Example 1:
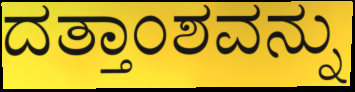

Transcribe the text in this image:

ದತ್ತಾಂಶವನ್ನು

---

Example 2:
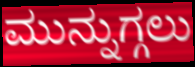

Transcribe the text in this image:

ಮುನ್ನುಗ್ಗಲು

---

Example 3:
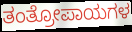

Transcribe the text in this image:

ತಂತ್ರೋಪಾಯಗಳ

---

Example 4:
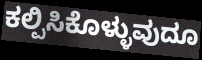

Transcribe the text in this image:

ಕಲ್ಪಿಸಿಕೊಳ್ಳುವುದೂ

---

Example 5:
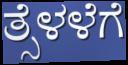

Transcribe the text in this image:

ತ್ಸೆಳಳೆಗೆ